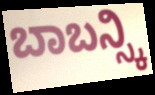
ಬಾಬನ್ಸ್ಕಿ